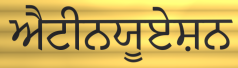
ਐਟੀਨਯੂਏਸ਼ਨ